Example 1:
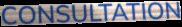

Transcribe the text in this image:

CONSULTATION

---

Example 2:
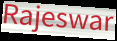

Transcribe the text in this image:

Rajeswar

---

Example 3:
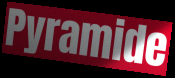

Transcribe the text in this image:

Pyramide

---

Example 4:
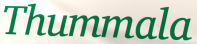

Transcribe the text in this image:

Thummala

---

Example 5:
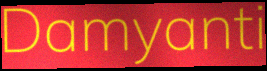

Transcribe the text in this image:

Damyanti